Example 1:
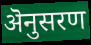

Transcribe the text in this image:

ऄनुसरण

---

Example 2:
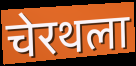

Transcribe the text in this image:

चेरथला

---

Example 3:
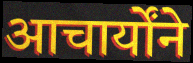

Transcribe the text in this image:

आचार्योंने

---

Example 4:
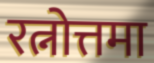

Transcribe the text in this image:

रत्नोत्तमा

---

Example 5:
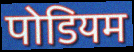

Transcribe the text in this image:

पोडियम